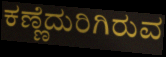
ಕಣ್ಣೆದುರಿಗಿರುವ